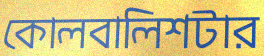
কোলবালিশটার